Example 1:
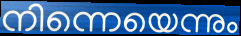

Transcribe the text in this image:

നിന്നെയെന്നും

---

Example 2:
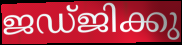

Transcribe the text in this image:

ജഡ്ജിക്കു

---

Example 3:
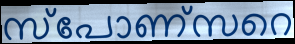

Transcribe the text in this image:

സ്പോണ്സറെ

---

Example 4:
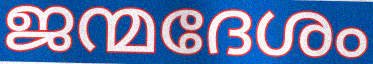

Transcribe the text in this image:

ജന്മദേശം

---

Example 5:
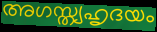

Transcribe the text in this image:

അഗസ്ത്യഹൃദയം